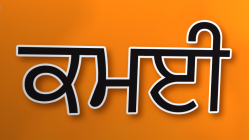
ਕਮਈ